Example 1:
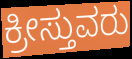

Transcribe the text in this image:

ಕ್ರೀಸ್ತುವರು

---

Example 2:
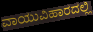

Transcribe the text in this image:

ವಾಯುವಿಹಾರದಲ್ಲಿ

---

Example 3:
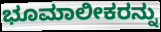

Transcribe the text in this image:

ಭೂಮಾಲೀಕರನ್ನು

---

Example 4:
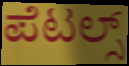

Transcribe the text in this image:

ಪೆಟಲ್ಸ್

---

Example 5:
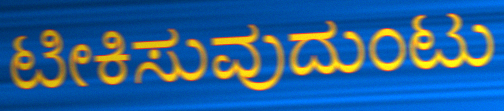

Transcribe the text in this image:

ಟೀಕಿಸುವುದುಂಟು